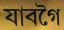
যাবগৈ